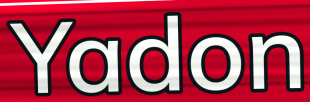
Yadon